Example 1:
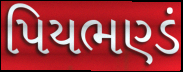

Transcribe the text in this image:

પિયભણ્ડં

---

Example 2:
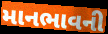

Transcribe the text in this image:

માનભાવની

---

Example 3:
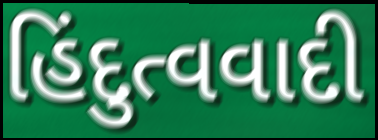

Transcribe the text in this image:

હિંદુત્વવાદી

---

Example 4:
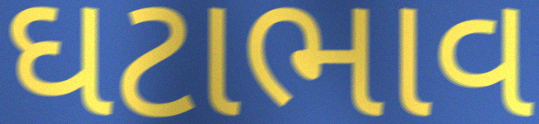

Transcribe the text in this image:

ઘટાભાવ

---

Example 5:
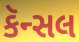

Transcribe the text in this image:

કૅન્સલ